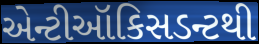
એન્ટીઑકિસડન્ટથી